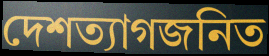
দেশত্যাগজনিত